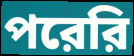
পরেরি